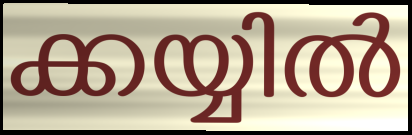
ക്കയ്യിൽ